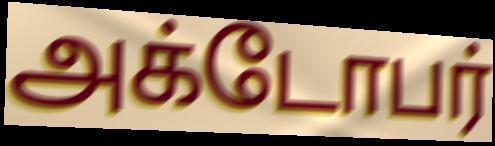
அக்டோபர்